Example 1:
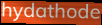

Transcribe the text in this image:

hydathode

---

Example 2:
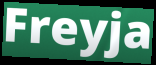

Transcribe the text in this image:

Freyja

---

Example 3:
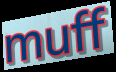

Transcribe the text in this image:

muff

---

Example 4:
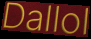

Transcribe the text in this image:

Dallol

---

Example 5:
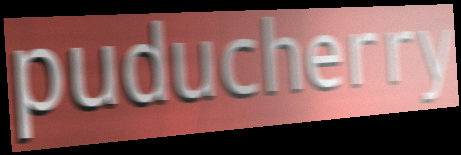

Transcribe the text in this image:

puducherry